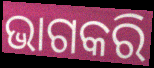
ଭାଗକରି